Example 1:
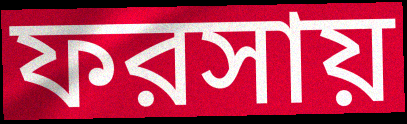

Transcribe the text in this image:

ফরসায়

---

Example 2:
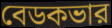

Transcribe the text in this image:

বেডকভার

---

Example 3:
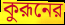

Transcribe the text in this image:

কুরূনের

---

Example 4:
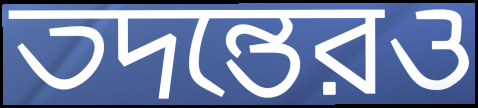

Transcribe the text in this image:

তদন্তেরও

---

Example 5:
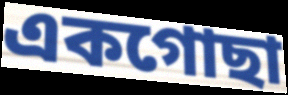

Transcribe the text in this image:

একগোছা